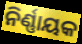
ନିର୍ଣ୍ଣାୟକ